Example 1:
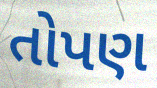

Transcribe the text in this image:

તોપણ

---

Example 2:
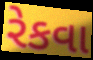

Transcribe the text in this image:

રેકવા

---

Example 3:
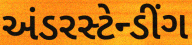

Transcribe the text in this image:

અંડરસ્ટેન્ડીંગ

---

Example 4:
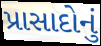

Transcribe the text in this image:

પ્રાસાદોનું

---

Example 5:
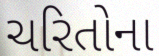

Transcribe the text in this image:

ચરિતોના